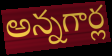
అన్నగార్ల